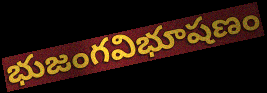
భుజంగవిభూషణం